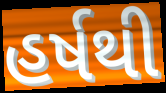
હર્ષથી